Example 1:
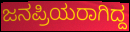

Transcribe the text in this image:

ಜನಪ್ರಿಯರಾಗಿದ್ದ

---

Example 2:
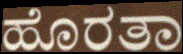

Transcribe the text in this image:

ಹೊರತಾ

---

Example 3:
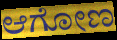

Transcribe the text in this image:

ಆಗೋಣ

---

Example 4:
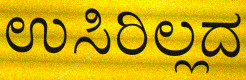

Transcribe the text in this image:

ಉಸಿರಿಲ್ಲದ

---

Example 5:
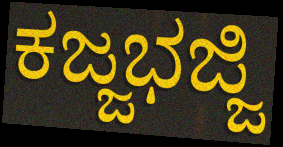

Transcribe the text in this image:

ಕಜ್ಜಭಜ್ಜಿ